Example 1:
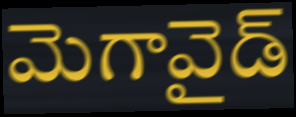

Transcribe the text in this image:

మెగావైడ్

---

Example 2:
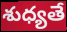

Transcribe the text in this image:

శుధ్యతే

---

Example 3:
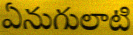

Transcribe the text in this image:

ఏనుగులాటి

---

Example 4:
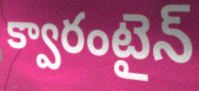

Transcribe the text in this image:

క్వారంటైన్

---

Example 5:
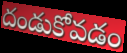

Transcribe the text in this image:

దండుకోవడం